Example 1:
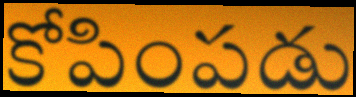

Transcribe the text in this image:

కోపింపడు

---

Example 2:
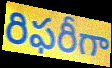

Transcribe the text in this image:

రిఫరీగా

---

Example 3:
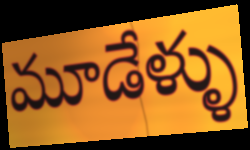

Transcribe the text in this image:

మూడేళ్ళు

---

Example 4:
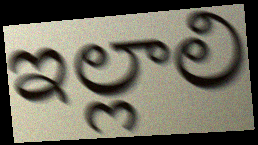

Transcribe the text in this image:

ఇల్లాలి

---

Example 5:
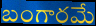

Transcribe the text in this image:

బంగారమే